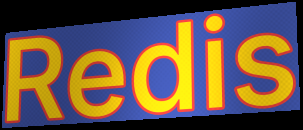
Redis